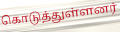
கொடுத்துள்ளனர்